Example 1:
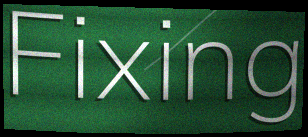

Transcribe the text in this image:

Fixing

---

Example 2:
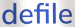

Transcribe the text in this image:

defile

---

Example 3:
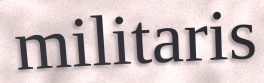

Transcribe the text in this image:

militaris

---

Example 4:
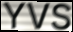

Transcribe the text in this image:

YVS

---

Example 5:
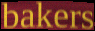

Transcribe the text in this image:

bakers